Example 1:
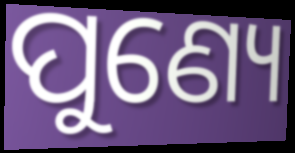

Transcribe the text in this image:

ପୁଣ୍ୟେ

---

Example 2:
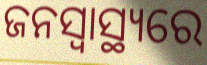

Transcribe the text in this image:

ଜନସ୍ଵାସ୍ଥ୍ୟରେ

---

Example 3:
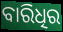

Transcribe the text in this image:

ବାରିଧିର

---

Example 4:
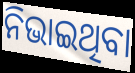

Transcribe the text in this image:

ନିଭାଇଥିବା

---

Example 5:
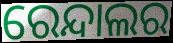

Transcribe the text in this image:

ରେନ୍ଦାଲର